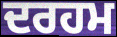
ਦਰਹਮ